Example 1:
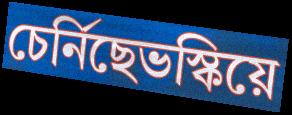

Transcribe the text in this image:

চেৰ্নিছেভস্কিয়ে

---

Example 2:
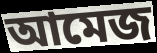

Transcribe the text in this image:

আমেজ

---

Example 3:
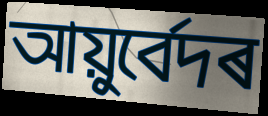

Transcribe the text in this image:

আয়ুৰ্বেদৰ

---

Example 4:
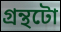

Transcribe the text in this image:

গ্ৰন্থটো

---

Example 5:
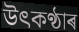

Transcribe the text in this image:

উৎকণ্ঠাৰ